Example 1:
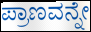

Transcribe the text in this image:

ಪ್ರಾಣವನ್ನೇ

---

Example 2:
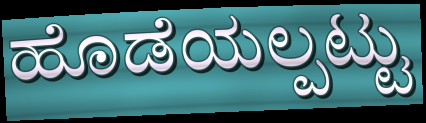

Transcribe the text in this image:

ಹೊಡೆಯಲ್ಪಟ್ಟು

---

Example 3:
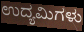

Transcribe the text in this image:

ಉದ್ಯಮಿಗಳು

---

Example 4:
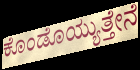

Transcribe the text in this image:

ಕೊಂಡೊಯ್ಯುತ್ತೇನೆ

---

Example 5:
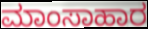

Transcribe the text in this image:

ಮಾಂಸಾಹಾರ